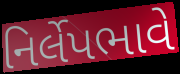
નિર્લેપભાવે